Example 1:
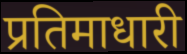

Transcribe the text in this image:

प्रतिमाधारी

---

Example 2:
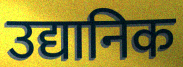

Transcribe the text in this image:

उद्यानिक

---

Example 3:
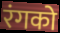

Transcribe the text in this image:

रंगको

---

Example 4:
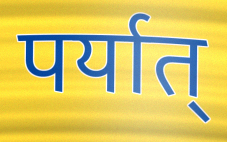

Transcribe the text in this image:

पर्यात्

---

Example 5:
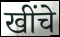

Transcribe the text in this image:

खींचे